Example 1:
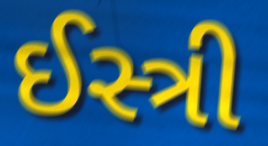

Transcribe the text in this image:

ઈસ્ત્રી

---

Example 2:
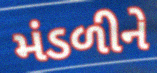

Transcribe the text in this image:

મંડળીને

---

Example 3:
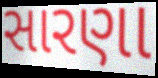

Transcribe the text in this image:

સારણા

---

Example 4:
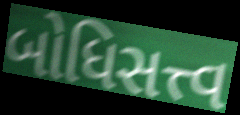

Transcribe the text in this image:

બોધિસત્ત્વ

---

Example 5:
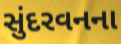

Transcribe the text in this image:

સુંદરવનના